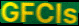
GFCIs